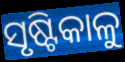
ସୃଷ୍ଟିକାଳୁ